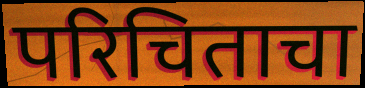
परिचिताचा